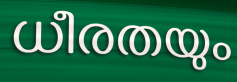
ധീരതയും